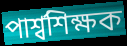
পার্শ্বশিক্ষক